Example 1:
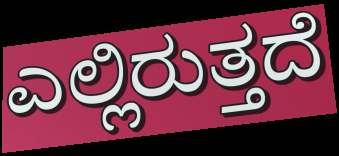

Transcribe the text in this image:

ಎಲ್ಲಿರುತ್ತದೆ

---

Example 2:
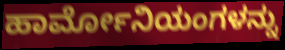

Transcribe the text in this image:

ಹಾರ್ಮೋನಿಯಂಗಳನ್ನು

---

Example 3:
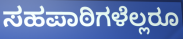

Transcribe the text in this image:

ಸಹಪಾಠಿಗಳೆಲ್ಲರೂ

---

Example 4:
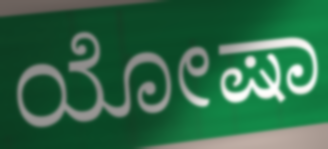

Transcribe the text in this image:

ಯೋಷಾ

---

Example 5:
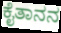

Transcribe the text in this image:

ಕೈತಾನನ